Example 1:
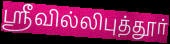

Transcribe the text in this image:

ஸ்ரீவில்லிபுத்தூர்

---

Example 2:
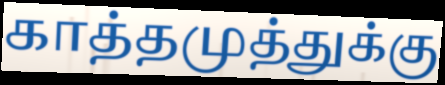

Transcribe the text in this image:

காத்தமுத்துக்கு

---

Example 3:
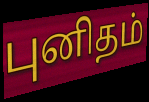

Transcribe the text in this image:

புனிதம்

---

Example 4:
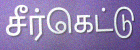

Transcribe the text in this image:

சீர்கெட்டு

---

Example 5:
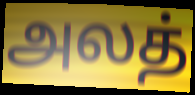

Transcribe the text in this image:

அலத்